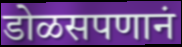
डोळसपणानं